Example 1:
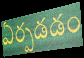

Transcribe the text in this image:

ఏర్పడడం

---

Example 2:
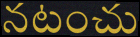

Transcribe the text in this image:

నటంచు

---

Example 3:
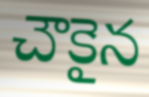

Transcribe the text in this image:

చౌకైన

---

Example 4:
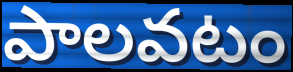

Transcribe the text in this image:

పాలవటం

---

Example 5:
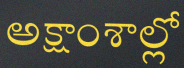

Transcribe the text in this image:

అక్షాంశాల్లో